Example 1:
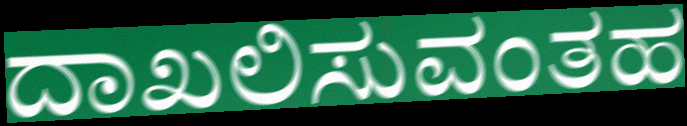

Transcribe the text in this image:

ದಾಖಲಿಸುವಂತಹ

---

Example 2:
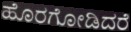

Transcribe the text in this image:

ಹೊರಗೋಡಿದರೆ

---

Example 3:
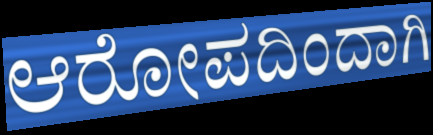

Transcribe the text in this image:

ಆರೋಪದಿಂದಾಗಿ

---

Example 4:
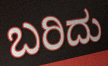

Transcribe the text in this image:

ಬರಿದು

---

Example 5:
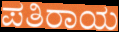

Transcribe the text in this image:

ಪತಿರಾಯ